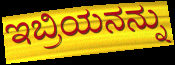
ಇಬ್ರಿಯನನ್ನು